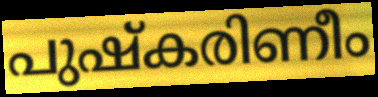
പുഷ്കരിണീം